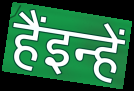
हैंइन्हें